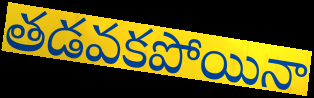
తడవకపోయినా